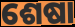
ଶେଷା